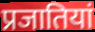
प्रजातियां